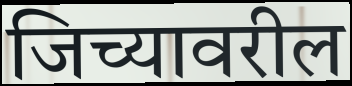
जिच्यावरील